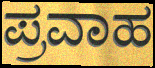
ಪ್ರವಾಹ